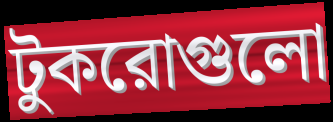
টুকরোগুলো